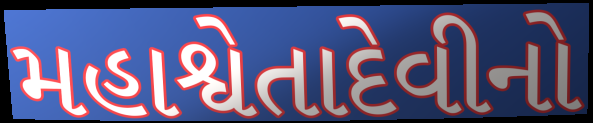
મહાશ્વેતાદેવીનો